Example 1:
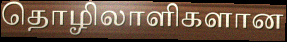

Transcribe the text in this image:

தொழிலாளிகளான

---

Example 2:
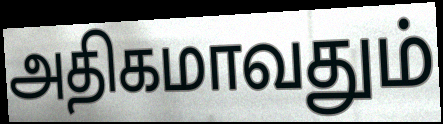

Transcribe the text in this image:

அதிகமாவதும்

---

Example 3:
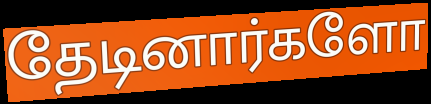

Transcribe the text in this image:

தேடினார்களோ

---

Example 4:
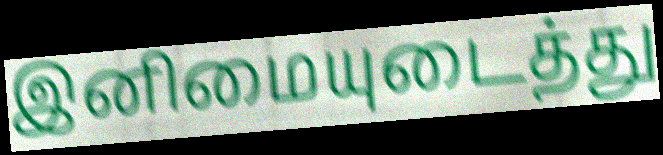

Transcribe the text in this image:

இனிமையுடைத்து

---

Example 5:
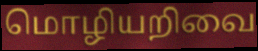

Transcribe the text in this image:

மொழியறிவை